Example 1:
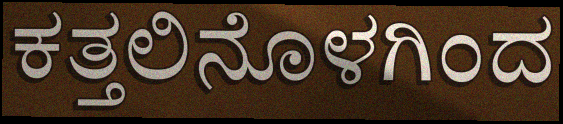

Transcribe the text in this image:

ಕತ್ತಲಿನೊಳಗಿಂದ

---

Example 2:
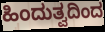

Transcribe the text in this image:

ಹಿಂದುತ್ವದಿಂದ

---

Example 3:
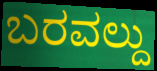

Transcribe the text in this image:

ಬರವಲ್ದು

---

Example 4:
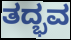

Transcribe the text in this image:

ತದ್ಭವ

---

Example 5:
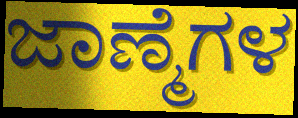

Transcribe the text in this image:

ಜಾಣ್ಮೆಗಳ